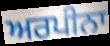
ਅਰਪੀਨਾ